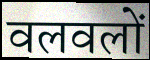
वलवलों